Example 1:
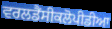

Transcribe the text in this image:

ਵਰਲਡੈਂਸੀਕਲੋਪੀਡੀਆ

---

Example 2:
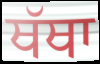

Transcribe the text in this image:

ਥੱਥਾ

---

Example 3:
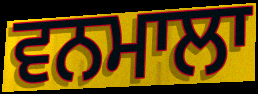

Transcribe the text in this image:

ਵਨਮਾਲਾ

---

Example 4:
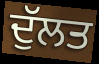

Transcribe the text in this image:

ਦੁੱਲਤ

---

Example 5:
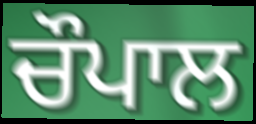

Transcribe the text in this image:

ਚੌਪਾਲ